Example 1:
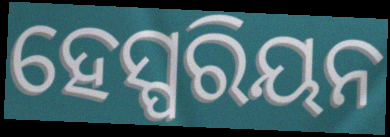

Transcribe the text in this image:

ହେସ୍ପରିୟନ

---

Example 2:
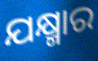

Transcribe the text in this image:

ଯକ୍ଷ୍ମାର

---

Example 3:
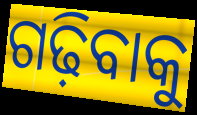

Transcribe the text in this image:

ଗଢ଼ିବାକୁ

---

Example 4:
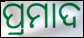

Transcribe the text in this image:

ପ୍ରମାଦ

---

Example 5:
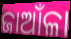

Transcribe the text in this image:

ଜାଆଁଳା